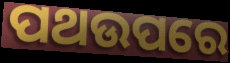
ପଥଉପରେ